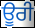
ਊਰੀ